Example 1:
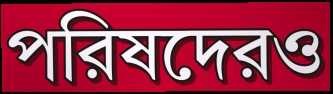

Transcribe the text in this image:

পরিষদেরও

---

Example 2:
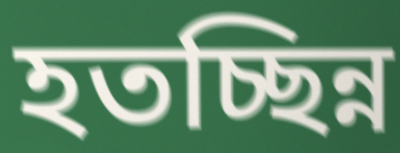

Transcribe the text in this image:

হতচ্ছিন্ন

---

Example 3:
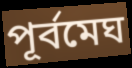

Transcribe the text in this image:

পূর্বমেঘ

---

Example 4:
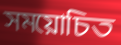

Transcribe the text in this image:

সময়োচিত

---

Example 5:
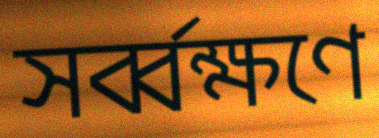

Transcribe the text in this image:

সর্ব্বক্ষণে